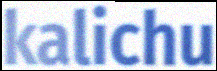
kalichu